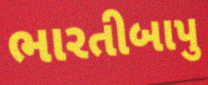
ભારતીબાપુ